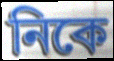
নিকে